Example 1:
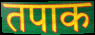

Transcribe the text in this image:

तपाक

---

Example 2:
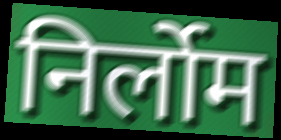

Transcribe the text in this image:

निर्लोम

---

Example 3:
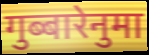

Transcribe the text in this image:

गुब्बारेनुमा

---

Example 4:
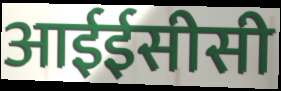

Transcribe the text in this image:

आईईसीसी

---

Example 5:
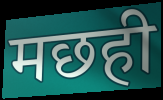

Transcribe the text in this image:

मछही